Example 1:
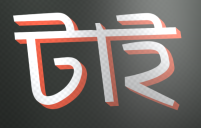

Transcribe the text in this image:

টাই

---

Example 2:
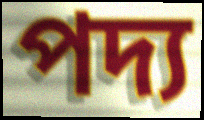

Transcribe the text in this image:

পদ্য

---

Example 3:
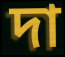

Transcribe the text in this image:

দা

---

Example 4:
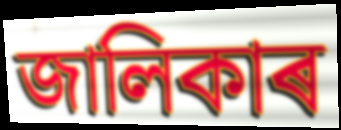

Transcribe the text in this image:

জালিকাৰ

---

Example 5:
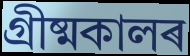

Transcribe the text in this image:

গ্ৰীষ্মকালৰ